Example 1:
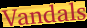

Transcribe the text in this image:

Vandals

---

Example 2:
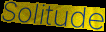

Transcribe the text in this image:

Solitude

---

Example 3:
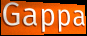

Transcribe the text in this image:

Gappa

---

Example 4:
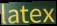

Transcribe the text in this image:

latex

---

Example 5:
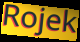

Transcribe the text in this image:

Rojek